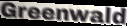
Greenwald